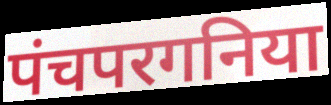
पंचपरगनिया